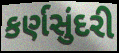
કર્ણસુંદરી